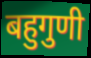
बहुगुणी